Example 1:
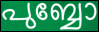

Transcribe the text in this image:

പുബ്ബോ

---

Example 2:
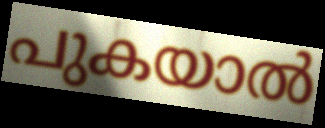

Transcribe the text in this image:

പുകയാൽ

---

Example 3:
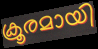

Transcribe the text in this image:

ക്രൂരമായി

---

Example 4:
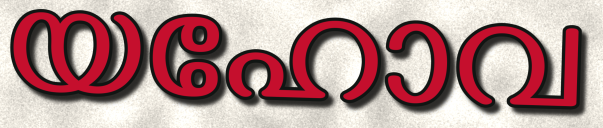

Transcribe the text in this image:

യഹോവ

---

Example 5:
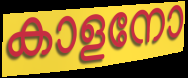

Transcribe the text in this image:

കാളനോ